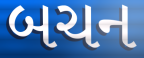
બચન